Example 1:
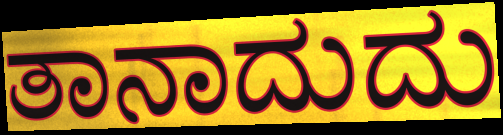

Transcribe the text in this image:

ತಾನಾದುದು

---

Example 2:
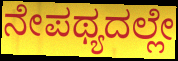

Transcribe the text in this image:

ನೇಪಥ್ಯದಲ್ಲೇ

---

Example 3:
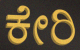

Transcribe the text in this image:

ಕೇರಿ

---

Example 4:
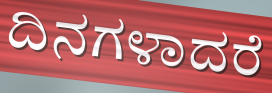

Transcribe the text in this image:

ದಿನಗಳಾದರೆ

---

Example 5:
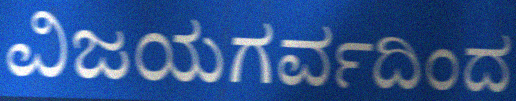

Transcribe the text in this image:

ವಿಜಯಗರ್ವದಿಂದ